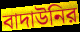
বাদাউনির